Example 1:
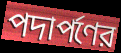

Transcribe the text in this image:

পদার্পণের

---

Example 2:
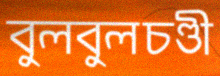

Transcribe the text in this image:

বুলবুলচণ্ডী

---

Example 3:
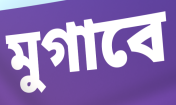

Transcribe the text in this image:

মুগাবে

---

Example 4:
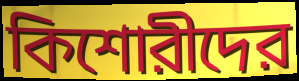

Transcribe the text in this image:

কিশোরীদের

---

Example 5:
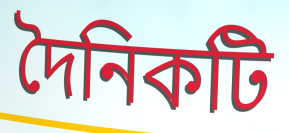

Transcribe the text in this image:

দৈনিকটি